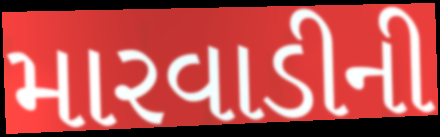
મારવાડીની